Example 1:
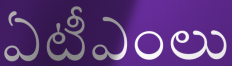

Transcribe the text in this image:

ఏటీఎంలు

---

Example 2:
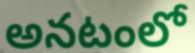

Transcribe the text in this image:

అనటంలో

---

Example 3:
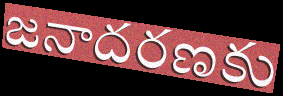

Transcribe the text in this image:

జనాదరణకు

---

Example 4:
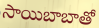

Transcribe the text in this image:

సాయిబాబాతో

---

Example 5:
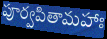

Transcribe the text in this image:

పూర్వపితామహాః